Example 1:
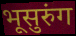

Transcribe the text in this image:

भूसुरुंग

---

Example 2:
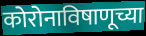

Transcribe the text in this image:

कोरोनाविषाणूच्या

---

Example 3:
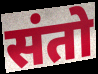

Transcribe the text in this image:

संतो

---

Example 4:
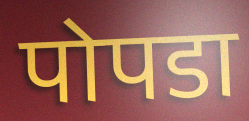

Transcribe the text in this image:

पोपडा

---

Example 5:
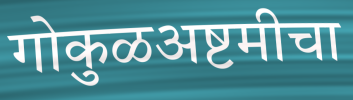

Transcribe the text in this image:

गोकुळअष्टमीचा